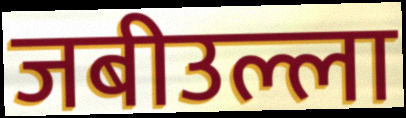
जबीउल्ला